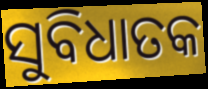
ସୁବିଧାତକ